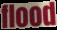
flood